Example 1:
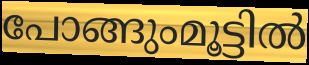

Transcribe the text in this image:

പോങ്ങുംമൂട്ടിൽ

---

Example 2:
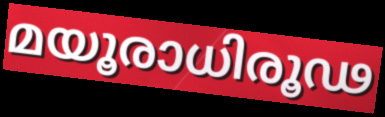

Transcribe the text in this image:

മയൂരാധിരൂഢ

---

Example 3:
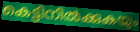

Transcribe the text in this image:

കെട്ടിനിൽക്കുകയും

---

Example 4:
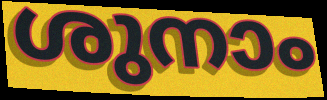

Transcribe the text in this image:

ശുനാം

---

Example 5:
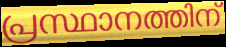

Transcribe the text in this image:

പ്രസ്ഥാനത്തിന്